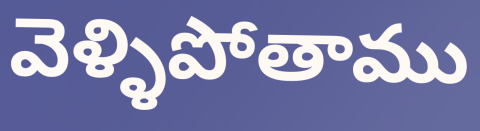
వెళ్ళిపోతాము